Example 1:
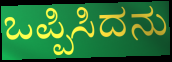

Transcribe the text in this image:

ಒಪ್ಪಿಸಿದನು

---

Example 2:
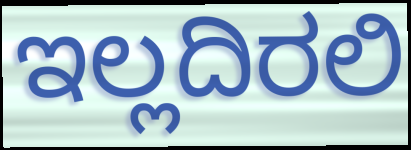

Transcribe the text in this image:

ಇಲ್ಲದಿರಲಿ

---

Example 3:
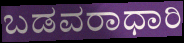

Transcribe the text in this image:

ಬಡವರಾಧಾರಿ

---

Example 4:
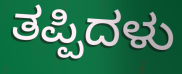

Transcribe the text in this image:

ತಪ್ಪಿದಳು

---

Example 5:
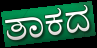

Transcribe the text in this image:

ತಾಕದ